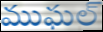
ముఘల్